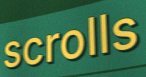
scrolls